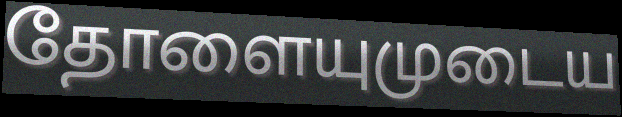
தோளையுமுடைய